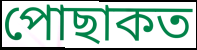
পোছাকত